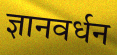
ज्ञानवर्धन